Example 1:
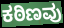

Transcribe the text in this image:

ಕಠಿಣವು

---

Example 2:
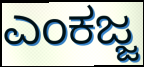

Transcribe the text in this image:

ಎಂಕಜ್ಜ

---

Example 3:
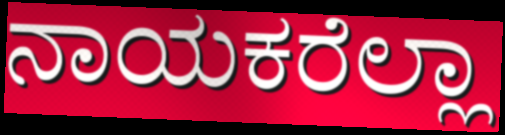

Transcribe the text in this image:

ನಾಯಕರೆಲ್ಲಾ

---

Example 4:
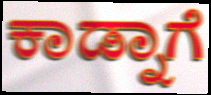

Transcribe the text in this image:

ಕಾಡ್ನಾಗೆ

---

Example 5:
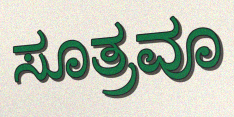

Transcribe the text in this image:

ಸೂತ್ರವೂ